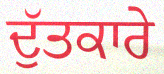
ਦੁੱਤਕਾਰੇ